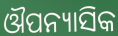
ଔପନ୍ୟାସିକ